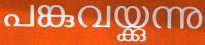
പങ്കുവയ്ക്കുന്നു